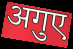
अगुए